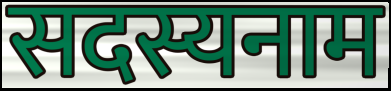
सदस्यनाम